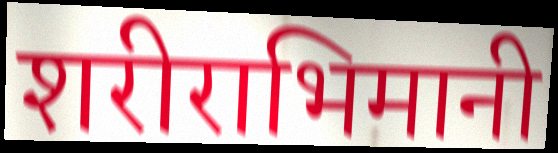
शरीराभिमानी